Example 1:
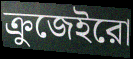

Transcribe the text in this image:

ক্রুজেইরো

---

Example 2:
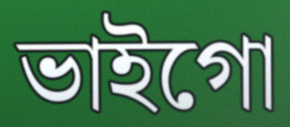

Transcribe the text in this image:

ভাইগো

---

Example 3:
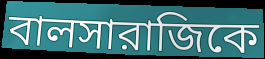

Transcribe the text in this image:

বালসারাজিকে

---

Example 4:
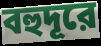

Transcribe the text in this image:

বহুদূরে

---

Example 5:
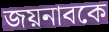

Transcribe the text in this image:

জয়নাবকে